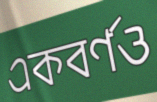
একবর্ণও